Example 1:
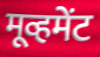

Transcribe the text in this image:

मूव्हमेंट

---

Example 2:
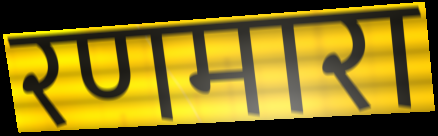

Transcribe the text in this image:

रणमारा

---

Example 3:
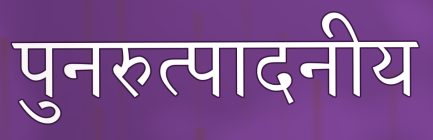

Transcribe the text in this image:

पुनरुत्पादनीय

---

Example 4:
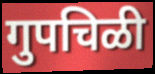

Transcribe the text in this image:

गुपचिळी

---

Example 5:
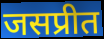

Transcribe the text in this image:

जसप्रीत